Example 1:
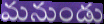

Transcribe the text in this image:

మనుండు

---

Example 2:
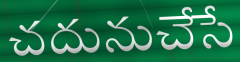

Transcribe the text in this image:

చదునుచేసే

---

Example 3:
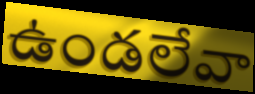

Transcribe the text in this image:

ఉండలేవా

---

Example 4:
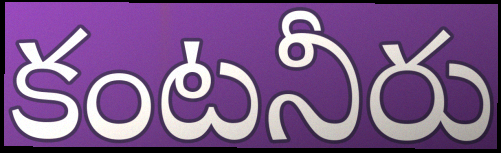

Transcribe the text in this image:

కంటనీరు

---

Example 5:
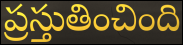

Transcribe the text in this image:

ప్రస్తుతించింది